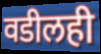
वडीलही